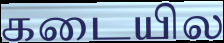
கடையில